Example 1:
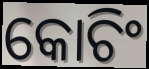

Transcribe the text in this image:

କୋଚିଂ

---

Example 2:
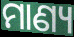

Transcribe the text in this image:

ମାଣ୍ୟ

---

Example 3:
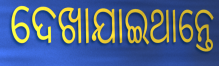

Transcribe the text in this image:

ଦେଖାଯାଇଥାନ୍ତେ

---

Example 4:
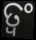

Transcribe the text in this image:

ତ୍ୱଂ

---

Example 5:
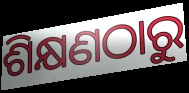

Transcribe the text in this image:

ଶିକ୍ଷଣଠାରୁ